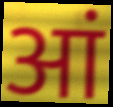
आं